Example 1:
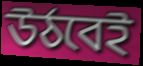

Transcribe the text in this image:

উঠবেই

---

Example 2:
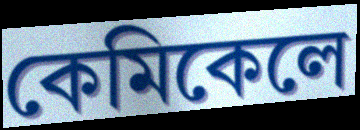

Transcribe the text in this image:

কেমিকেলে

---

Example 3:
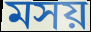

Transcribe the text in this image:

মসয়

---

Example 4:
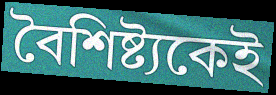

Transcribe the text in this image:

বৈশিষ্ট্যকেই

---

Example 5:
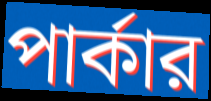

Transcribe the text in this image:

পার্কার